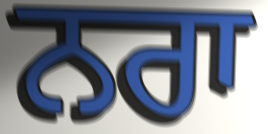
ਨਰਾ